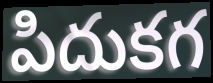
పిదుకగ